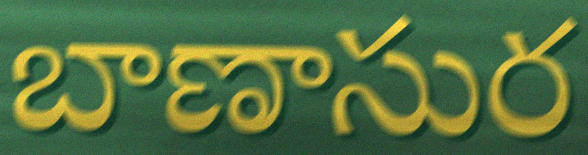
బాణాసుర